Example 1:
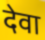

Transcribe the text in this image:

देवा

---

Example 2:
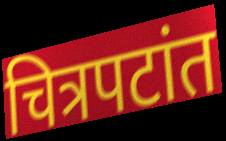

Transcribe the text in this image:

चित्रपटांत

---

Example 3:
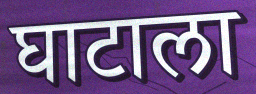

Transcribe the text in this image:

घाटाला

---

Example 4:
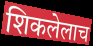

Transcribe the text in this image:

शिकलेलाच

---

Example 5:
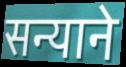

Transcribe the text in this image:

सन्याने